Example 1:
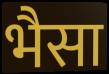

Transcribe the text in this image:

भैसा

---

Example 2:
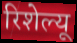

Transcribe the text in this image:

रिशेल्यू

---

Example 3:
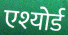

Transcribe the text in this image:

एश्योर्ड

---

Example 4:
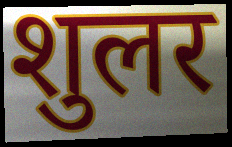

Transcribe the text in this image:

शुलर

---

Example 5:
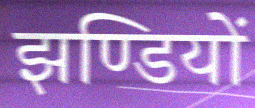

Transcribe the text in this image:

झण्डियों